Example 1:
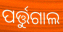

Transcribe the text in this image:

ପର୍ତ୍ତୁଗାଲ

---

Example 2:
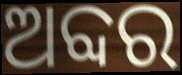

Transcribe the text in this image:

ଅବ୍ଦର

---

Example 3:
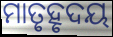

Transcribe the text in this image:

ମାତୃହୃଦୟ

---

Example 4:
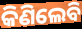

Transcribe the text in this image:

କିଣିଲେବି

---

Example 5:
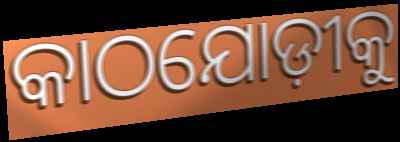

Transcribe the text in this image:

କାଠଯୋଡ଼ୀକୁ